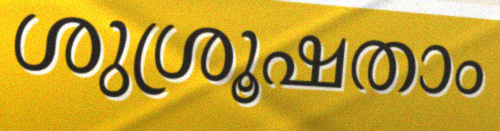
ശുശ്രൂഷതാം